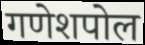
गणेशपोल